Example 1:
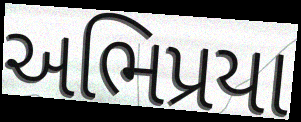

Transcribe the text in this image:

અભિપ્રયા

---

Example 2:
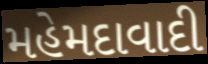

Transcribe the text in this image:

મહેમદાવાદી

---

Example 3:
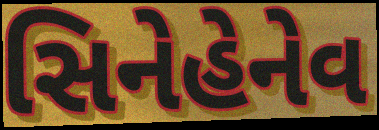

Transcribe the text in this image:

સિનેહેનેવ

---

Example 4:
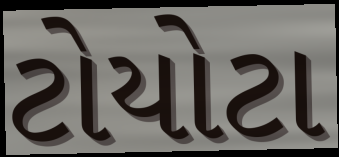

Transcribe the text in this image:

ટોયોટા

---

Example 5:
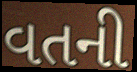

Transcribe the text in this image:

વતની